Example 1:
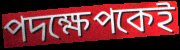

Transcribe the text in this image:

পদক্ষেপকেই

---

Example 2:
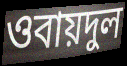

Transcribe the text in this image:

ওবায়দুল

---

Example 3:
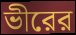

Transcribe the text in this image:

ভীরের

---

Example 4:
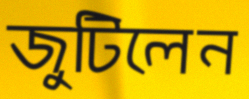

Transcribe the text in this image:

জুটিলেন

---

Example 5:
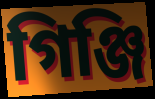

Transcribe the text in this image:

গিঞ্জি